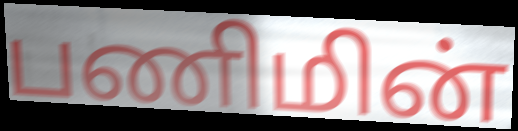
பணிமின்